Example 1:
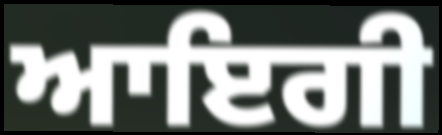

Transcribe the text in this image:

ਆਇਗੀ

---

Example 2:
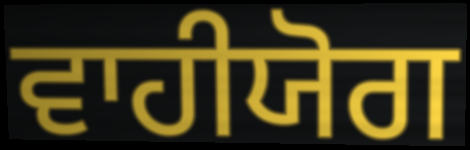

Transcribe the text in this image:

ਵਾਹੀਯੋਗ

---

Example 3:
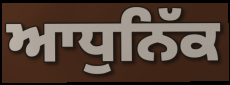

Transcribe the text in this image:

ਆਧੁਨਿੱਕ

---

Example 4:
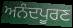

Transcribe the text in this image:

ਅਨੰਦਪੂਰਣ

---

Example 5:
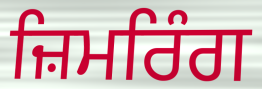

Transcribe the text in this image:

ਜ਼ਿਮਰਿੰਗ